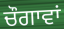
ਚੌਗਾਵਾਂ